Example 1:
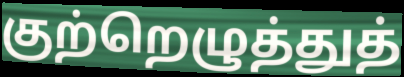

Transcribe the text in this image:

குற்றெழுத்துத்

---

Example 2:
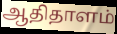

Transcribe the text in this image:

ஆதிதாளம்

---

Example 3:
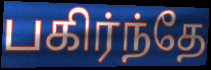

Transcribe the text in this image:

பகிர்ந்தே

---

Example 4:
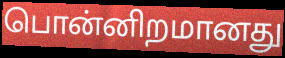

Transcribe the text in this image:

பொன்னிறமானது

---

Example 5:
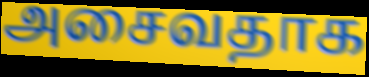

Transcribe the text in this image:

அசைவதாக